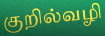
குறில்வழி